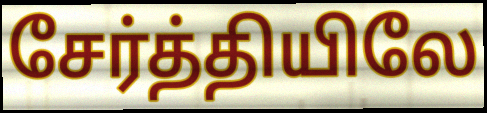
சேர்த்தியிலே